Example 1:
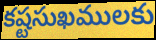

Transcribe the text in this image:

కష్టసుఖములకు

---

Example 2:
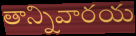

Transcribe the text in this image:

తాన్నివారయ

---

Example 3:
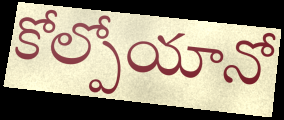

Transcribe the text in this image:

కోల్పోయానో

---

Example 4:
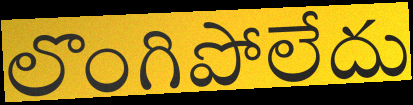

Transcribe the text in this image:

లొంగిపోలేదు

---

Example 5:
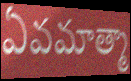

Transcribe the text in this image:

ఏవమాత్మా